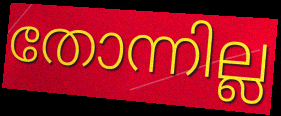
തോന്നില്ല